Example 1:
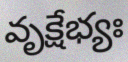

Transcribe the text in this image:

వృక్షేభ్యః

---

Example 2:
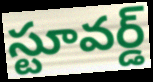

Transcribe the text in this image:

స్టూవర్డ్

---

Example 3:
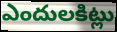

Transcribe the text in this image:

ఎందులకిట్లు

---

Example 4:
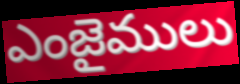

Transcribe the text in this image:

ఎంజైములు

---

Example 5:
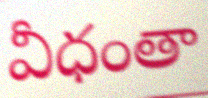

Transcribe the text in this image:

వీధంతా